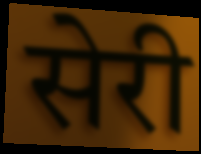
सेरी